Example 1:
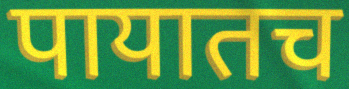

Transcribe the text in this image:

पायातच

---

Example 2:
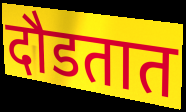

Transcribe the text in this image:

दौडतात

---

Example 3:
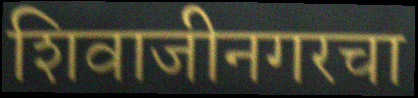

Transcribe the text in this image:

शिवाजीनगरचा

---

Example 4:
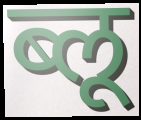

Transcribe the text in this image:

ब्लू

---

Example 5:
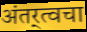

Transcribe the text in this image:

अंतर्त्वचा